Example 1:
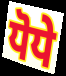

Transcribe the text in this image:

ਧੋਧੇ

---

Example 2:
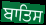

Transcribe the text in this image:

ਬਾਤਿਸ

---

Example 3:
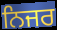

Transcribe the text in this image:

ਨਿਜਰ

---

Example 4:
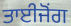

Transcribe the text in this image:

ਤਾਈਜੋਂਗ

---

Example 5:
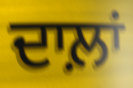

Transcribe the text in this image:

ਦਾਲ਼ਾਂ